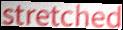
stretched